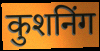
कुशनिंग